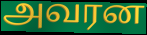
அவரன